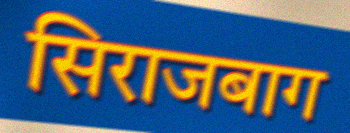
सिराजबाग